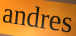
andres